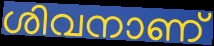
ശിവനാണ്